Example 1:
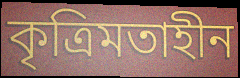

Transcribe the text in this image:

কৃত্রিমতাহীন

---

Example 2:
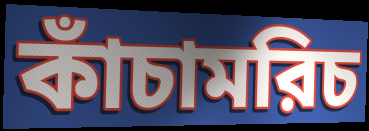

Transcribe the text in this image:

কাঁচামরিচ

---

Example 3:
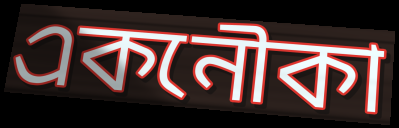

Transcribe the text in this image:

একনৌকা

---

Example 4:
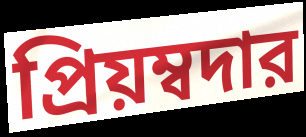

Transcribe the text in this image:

প্রিয়ম্বদার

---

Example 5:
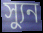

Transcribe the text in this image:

স্যুন